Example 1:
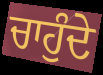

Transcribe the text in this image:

ਚਾਹੁੰਦੇ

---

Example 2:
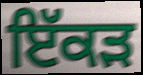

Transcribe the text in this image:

ਇੱਕੜ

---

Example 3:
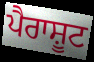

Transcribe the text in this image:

ਪੈਰਾਸ਼ੂਟ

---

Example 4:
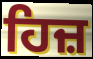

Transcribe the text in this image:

ਹਿਜ਼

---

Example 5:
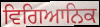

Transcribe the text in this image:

ਵਿਗਿਆਨਿਕ